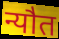
न्यौत